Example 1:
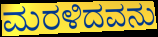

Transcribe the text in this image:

ಮರಳಿದವನು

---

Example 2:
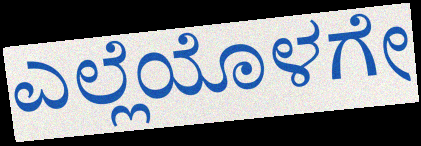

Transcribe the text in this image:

ಎಲ್ಲೆಯೊಳಗೇ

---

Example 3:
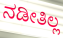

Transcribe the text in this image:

ನಡೀತಿಲ್ಲ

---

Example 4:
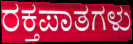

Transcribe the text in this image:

ರಕ್ತಪಾತಗಳು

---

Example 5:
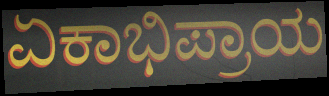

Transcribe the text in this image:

ಏಕಾಭಿಪ್ರಾಯ